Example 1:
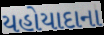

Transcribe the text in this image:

યહોયાદાના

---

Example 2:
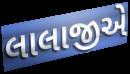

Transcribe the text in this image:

લાલાજીએ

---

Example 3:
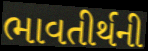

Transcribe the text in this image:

ભાવતીર્થની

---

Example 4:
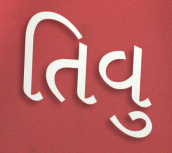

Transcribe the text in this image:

તિવુ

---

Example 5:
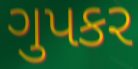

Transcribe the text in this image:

ગુપકર